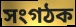
সংগঠক